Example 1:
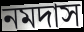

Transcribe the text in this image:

নমদাস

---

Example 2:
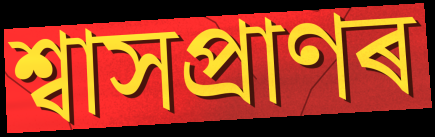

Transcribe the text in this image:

শ্বাসপ্ৰাণৰ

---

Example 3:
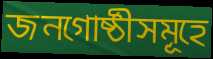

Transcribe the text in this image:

জনগোষ্ঠীসমূহে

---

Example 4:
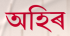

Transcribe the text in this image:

অহিৰ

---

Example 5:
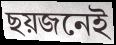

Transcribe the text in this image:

ছয়জনেই